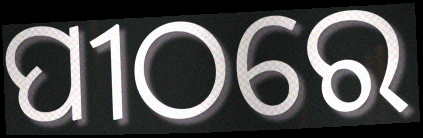
ପୀଠରେ